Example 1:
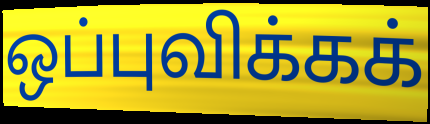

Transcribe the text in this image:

ஒப்புவிக்கக்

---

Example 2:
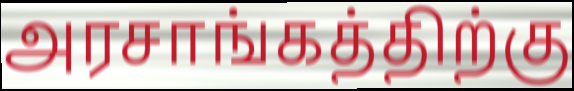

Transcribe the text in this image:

அரசாங்கத்திற்கு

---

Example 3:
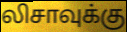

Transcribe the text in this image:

லிசாவுக்கு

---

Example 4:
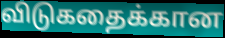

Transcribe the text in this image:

விடுகதைக்கான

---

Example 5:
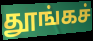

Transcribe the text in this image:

தூங்கச்